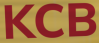
KCB